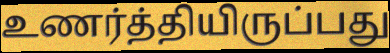
உணர்த்தியிருப்பது